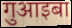
गुआइबा